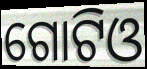
ଗୋଟିଓ